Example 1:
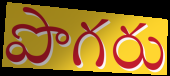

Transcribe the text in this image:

పొగరు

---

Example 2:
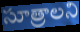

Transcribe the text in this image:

సూత్రాలని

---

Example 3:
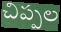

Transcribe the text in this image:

చిప్పల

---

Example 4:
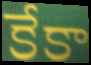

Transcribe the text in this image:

కేకా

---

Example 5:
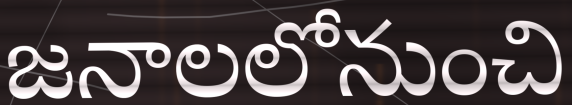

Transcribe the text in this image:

జనాలలోనుంచి